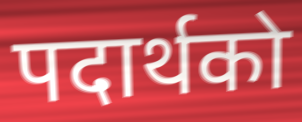
पदार्थको